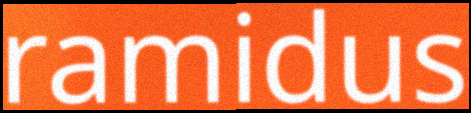
ramidus